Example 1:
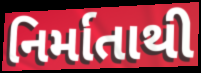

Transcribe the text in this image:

નિર્માતાથી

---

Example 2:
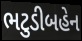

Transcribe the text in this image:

ભટુડીબહેન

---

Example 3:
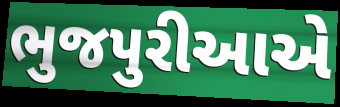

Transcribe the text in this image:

ભુજપુરીઆએ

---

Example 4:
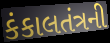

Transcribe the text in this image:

કંકાલતંત્રની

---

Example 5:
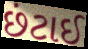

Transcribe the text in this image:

છંટાઈ